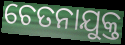
ଚେତନାଯୁକ୍ତ